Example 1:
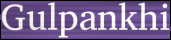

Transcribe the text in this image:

Gulpankhi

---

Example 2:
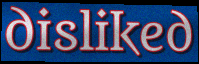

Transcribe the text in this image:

disliked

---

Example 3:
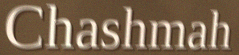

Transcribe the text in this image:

Chashmah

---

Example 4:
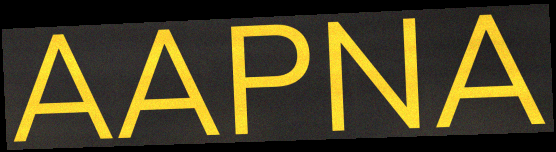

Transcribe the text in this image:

AAPNA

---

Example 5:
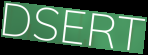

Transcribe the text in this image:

DSERT